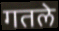
गतले